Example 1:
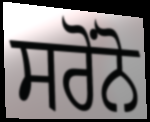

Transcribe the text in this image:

ਸਰੋਂਨੋ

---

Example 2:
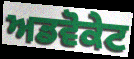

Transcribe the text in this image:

ਅਡਵੋਕੇਟ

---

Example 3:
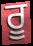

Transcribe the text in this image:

ਰੂ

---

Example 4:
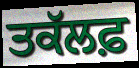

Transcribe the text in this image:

ਤਕੱਲਫ਼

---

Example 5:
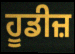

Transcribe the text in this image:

ਹੂਡੀਜ਼